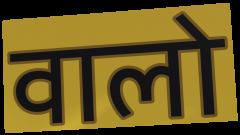
वालो